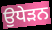
ਉਧੇੜਨ